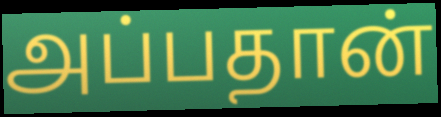
அப்பதான்